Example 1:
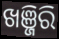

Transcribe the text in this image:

ଖଞ୍ଜିରି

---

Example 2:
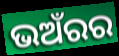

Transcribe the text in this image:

ଭଅଁରର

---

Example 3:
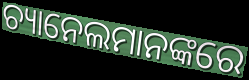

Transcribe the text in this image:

ଚ୍ୟାନେଲମାନଙ୍କରେ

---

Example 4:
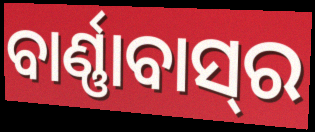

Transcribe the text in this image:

ବାର୍ଣ୍ଣାବାସ୍‌ର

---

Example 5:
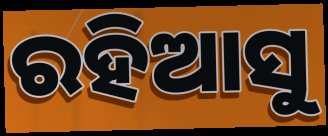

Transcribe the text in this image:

ରହିଆସୁ